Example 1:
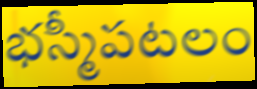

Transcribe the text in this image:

భస్మీపటలం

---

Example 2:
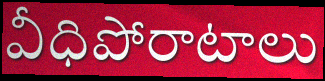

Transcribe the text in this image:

వీధిపోరాటాలు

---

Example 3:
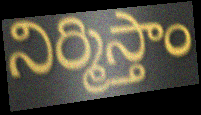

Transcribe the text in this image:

నిర్మిస్తాం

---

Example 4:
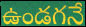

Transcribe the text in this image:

ఉండగనే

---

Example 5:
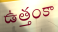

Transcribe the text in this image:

ఉత్తంకా